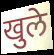
खुले